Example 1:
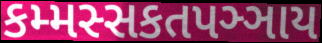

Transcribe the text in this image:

કમ્મસ્સકતપઞ્ઞાય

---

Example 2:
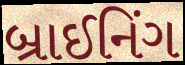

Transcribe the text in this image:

બ્રાઈનિંગ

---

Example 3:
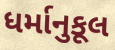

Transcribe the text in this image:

ધર્માનુકૂલ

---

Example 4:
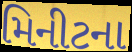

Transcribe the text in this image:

મિનીટના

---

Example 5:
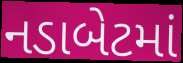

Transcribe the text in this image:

નડાબેટમાં